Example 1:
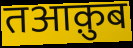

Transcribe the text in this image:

तआक़ुब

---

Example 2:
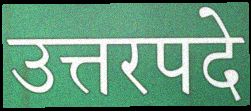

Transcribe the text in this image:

उत्तरपदे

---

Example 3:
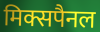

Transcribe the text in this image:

मिक्सपैनल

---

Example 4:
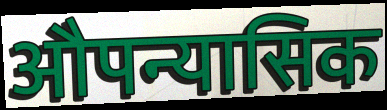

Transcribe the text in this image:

औपन्यासिक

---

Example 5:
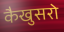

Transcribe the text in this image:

कैखुसरो